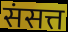
संसत्त